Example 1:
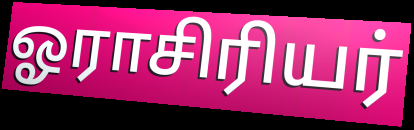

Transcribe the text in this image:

ஓராசிரியர்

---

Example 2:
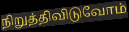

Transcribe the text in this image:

நிறுத்திவிடுவோம்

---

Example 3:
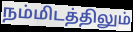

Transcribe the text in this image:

நம்மிடத்திலும்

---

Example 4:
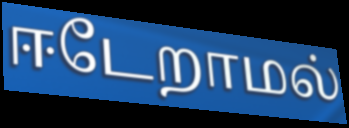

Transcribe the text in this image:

ஈடேறாமல்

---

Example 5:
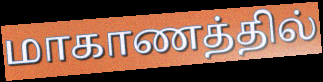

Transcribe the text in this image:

மாகாணத்தில்